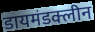
डायमंडक्लीन